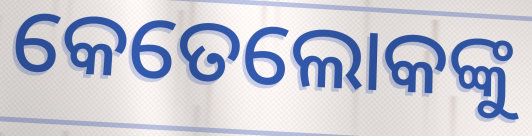
କେତେଲୋକଙ୍କୁ